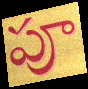
పూ